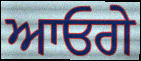
ਆਓਗੇ